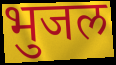
भुजल